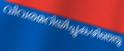
വിവരമറിയിച്ചുകഴിഞ്ഞു